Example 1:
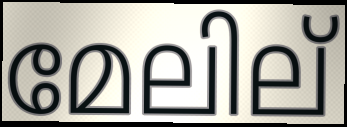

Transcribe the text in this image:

മേലില്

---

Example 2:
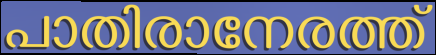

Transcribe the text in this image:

പാതിരാനേരത്ത്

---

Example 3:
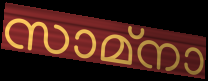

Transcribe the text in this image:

സാമ്നാ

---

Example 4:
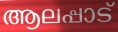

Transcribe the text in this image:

ആലപ്പാട്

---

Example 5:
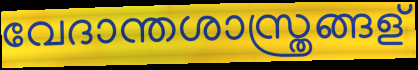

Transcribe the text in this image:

വേദാന്തശാസ്ത്രങ്ങള്